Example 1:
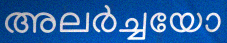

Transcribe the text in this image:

അലർച്ചയോ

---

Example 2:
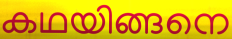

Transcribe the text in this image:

കഥയിങ്ങനെ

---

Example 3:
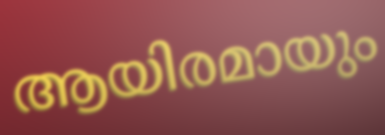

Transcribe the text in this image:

ആയിരമായും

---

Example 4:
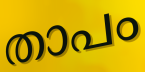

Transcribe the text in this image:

താപം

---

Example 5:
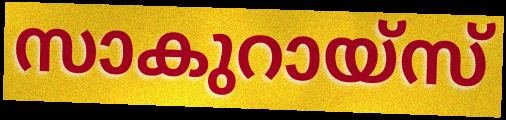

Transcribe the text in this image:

സാകുറായ്സ്